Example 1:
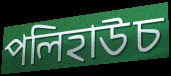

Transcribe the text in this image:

পলিহাউচ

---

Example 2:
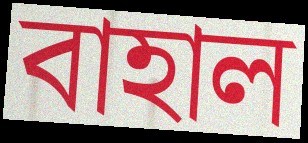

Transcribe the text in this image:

বাহাল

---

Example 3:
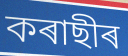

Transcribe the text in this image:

কৰাছীৰ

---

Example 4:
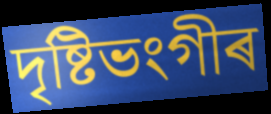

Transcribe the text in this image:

দৃষ্টিভংগীৰ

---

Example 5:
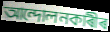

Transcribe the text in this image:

আন্দোলনকাৰীৰ